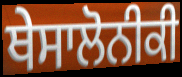
ਥੇਸਾਲੋਨੀਕੀ